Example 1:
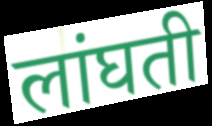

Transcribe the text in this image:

लांघती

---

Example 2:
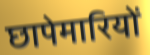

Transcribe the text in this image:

छापेमारियों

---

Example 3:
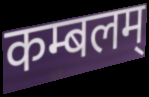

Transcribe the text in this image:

कम्बलम्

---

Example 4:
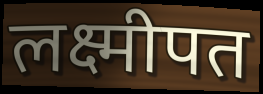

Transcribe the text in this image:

लक्ष्मीपत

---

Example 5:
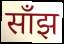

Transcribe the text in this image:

साँझ